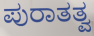
ಪುರಾತತ್ವ